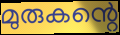
മുരുകന്റെ